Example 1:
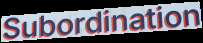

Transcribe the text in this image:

Subordination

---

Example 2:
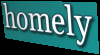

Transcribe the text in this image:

homely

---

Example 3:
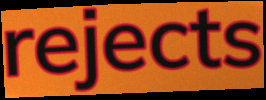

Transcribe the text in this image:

rejects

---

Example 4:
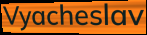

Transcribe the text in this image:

Vyacheslav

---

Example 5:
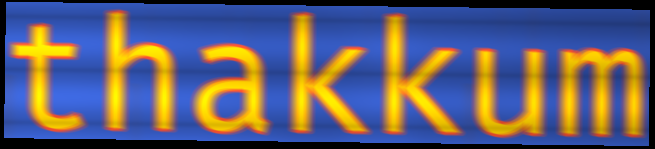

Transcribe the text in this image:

thakkum